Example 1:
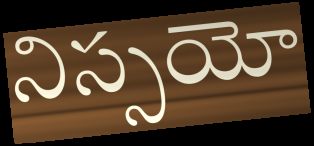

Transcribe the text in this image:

నిస్సయో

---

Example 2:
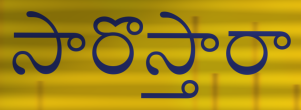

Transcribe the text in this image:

సారొస్తారా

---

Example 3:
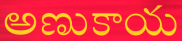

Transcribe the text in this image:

అణుకాయ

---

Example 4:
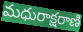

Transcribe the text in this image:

మధురాక్షరాణి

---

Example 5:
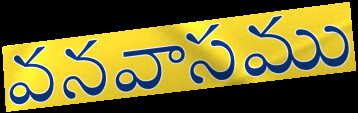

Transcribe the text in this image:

వనవాసము